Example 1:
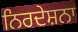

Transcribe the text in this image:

ਨਿਰਦੇਸ਼ਨਾ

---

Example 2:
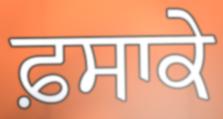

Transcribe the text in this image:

ਫ਼ਸਾਕੇ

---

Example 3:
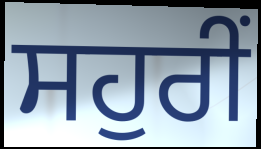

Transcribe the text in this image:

ਸਹੁਰੀਂ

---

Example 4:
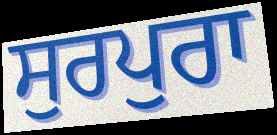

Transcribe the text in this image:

ਸੁਰਪੁਰਾ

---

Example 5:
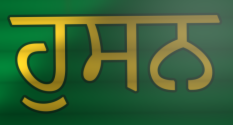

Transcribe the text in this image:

ਹੁਸਨ